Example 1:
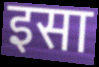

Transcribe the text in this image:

इसा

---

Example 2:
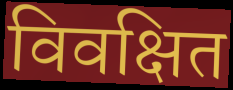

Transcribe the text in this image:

विवक्षित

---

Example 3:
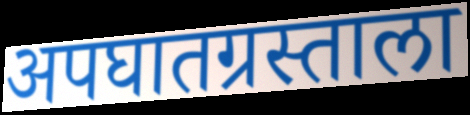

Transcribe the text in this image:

अपघातग्रस्ताला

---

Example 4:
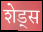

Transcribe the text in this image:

शेड्स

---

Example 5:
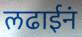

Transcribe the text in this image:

लढाईनं